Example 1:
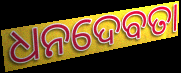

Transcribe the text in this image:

ଧନଦେବତା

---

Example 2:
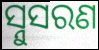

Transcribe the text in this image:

ସ୍ନୁସରଣ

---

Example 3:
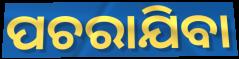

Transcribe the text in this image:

ପଚରାଯିବା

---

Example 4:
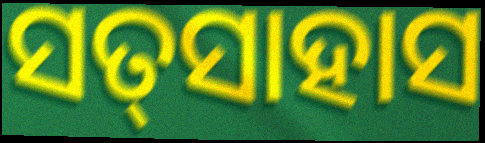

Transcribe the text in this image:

ସତ୍‌ସାହାସ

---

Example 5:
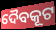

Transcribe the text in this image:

ଦୈବକୂଟ